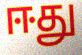
ஈது